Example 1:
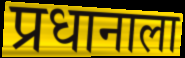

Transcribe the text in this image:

प्रधानाला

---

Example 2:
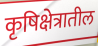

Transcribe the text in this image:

कृषिक्षेत्रातील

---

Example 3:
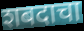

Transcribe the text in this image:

शबदाचा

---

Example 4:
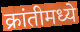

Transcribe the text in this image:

क्रांतीमध्ये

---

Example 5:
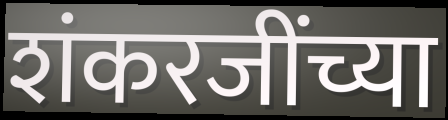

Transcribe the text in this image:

शंकरजींच्या